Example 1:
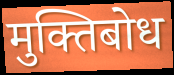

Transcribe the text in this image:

मुक्तिबोध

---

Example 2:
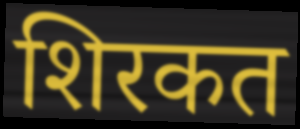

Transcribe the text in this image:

शिरकत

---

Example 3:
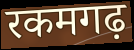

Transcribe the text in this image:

रकमगढ़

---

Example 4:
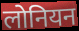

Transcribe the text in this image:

लोनियन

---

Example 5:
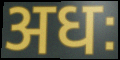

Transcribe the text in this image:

अधः